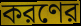
করণের